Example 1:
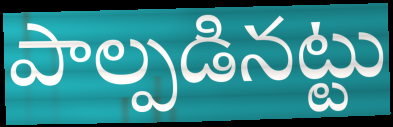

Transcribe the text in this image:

పాల్పడినట్టు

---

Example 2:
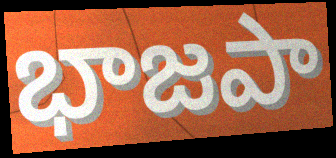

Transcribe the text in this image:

భాజపా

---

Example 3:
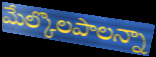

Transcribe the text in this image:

మేల్కొలపాలన్నా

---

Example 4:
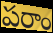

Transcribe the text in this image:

పరాం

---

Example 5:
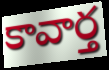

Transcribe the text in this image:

కావార్త